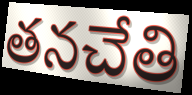
తనచేతి